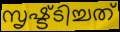
സൃഷ്ട്ടിച്ചത്